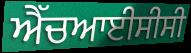
ਐੱਚਆਈਸੀਸੀ